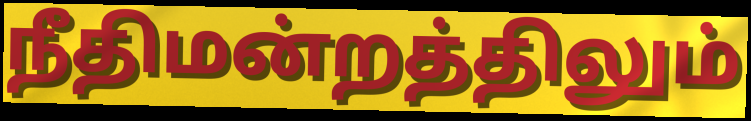
நீதிமன்றத்திலும்